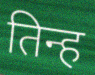
तिन्ह